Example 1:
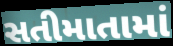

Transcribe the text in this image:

સતીમાતામાં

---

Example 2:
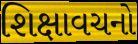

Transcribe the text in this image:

શિક્ષાવચનો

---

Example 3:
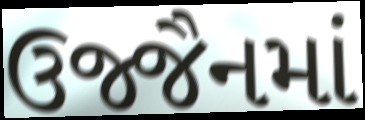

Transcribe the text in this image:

ઉજ્જૈનમાં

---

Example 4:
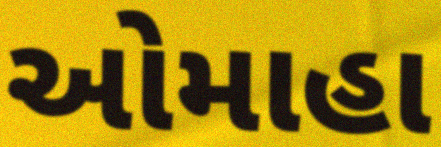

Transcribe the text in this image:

ઓમાહા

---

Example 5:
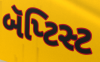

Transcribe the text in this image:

બૅપ્ટિસ્ટ